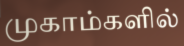
முகாம்களில்